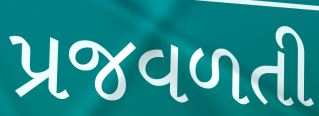
પ્રજવળતી